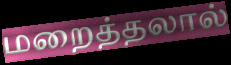
மறைத்தலால்